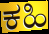
ಕಹಿ